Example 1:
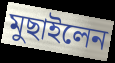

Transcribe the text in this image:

মুছাইলেন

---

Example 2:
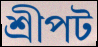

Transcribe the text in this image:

শ্রীপট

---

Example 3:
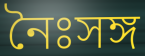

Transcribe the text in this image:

নৈঃসঙ্গ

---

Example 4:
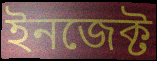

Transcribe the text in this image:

ইনজেক্ট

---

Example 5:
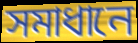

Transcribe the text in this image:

সমাধানে